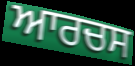
ਆਰਚਸ